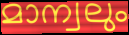
മാന്വലും